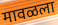
मावळला